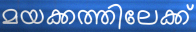
മയക്കത്തിലേക്ക്